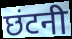
छंटनी